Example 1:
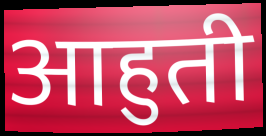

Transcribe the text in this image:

आहुती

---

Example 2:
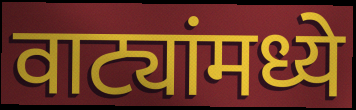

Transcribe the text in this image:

वाट्यांमध्ये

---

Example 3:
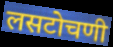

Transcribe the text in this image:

लसटोचणी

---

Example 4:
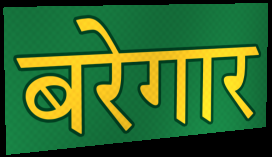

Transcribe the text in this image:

बरेगार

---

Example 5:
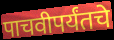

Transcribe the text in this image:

पाचवीपर्यंतचे